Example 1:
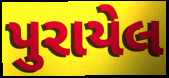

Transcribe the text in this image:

પુરાયેલ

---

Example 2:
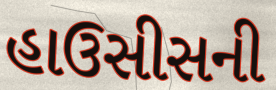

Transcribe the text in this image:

હાઉસીસની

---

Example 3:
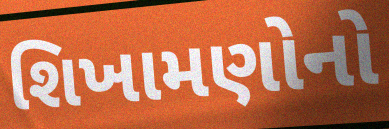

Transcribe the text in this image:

શિખામણોનો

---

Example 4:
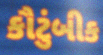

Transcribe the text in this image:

કૌટુંબીક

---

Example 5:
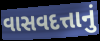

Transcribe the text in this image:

વાસવદત્તાનું